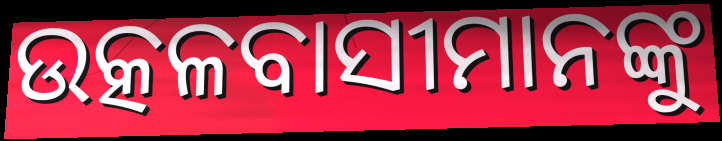
ଉତ୍କଳବାସୀମାନଙ୍କୁ